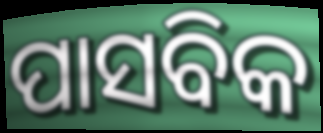
ପାସବିକ